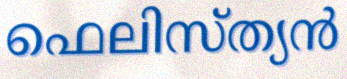
ഫെലിസ്ത്യൻ